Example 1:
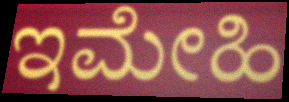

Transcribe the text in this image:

ಇಮೇಹಿ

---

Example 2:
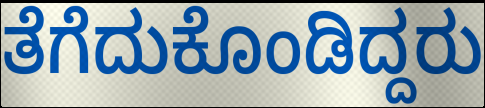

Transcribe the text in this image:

ತೆಗೆದುಕೊಂಡಿದ್ದರು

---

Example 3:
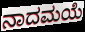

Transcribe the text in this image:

ನಾದಮಯೆ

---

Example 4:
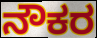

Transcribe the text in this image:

ನೌಕರ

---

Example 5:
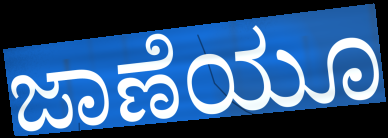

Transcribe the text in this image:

ಜಾಣೆಯೂ